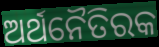
ଅର୍ଥନୈତିରକ